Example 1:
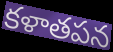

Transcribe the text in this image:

కళాతపన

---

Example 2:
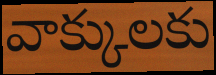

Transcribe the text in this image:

వాక్కులకు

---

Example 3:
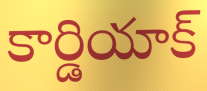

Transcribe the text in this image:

కార్డియాక్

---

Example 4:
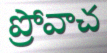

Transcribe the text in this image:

ప్రోవాచ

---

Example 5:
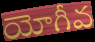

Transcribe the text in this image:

యోగీవ